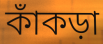
কাঁকড়া